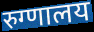
रुग्णालय